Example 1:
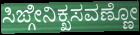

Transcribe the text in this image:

ಸಿಙ್ಗೀನಿಕ್ಖಸವಣ್ಣೋ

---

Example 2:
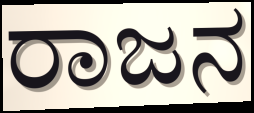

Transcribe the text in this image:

ರಾಜನ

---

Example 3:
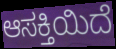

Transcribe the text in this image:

ಆಸಕ್ತಿಯಿದೆ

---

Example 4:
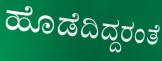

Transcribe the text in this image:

ಹೊಡೆದಿದ್ದರಂತೆ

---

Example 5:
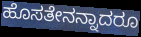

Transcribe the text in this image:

ಹೊಸತೇನನ್ನಾದರೂ